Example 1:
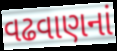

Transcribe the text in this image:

વઢવાણનાં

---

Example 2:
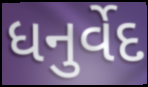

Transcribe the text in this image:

ધનુર્વેદ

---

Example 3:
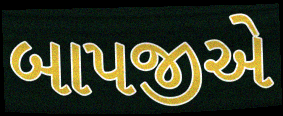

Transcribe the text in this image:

બાપજીએ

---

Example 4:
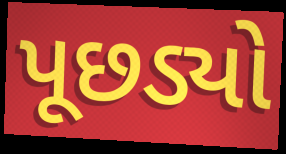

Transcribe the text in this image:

પૂછડ્યો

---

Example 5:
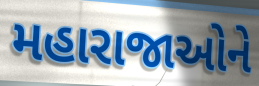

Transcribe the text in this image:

મહારાજાઓને